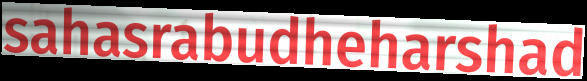
sahasrabudheharshad